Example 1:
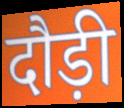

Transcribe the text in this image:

दौड़ी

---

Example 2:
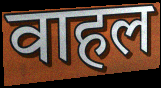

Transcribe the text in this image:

वाहल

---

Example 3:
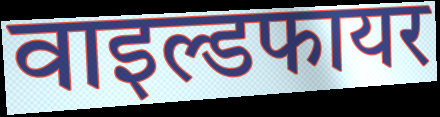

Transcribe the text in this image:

वाइल्डफायर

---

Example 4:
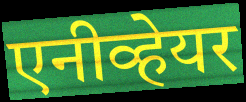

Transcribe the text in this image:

एनीव्हेयर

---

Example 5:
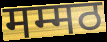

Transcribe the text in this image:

मम्मठ